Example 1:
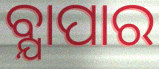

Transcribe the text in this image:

ବ୍ଯାପାର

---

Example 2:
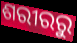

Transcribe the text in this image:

ଶରୀରରୁ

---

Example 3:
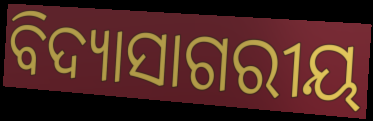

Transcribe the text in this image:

ବିଦ୍ୟାସାଗରୀୟ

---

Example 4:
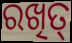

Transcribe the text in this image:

ରଖିତ୍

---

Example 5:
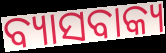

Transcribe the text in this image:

ବ୍ୟାସବାକ୍ୟ